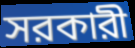
সরকারী